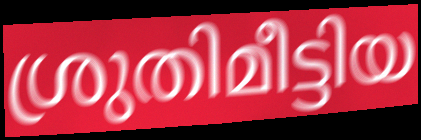
ശ്രുതിമീട്ടിയ